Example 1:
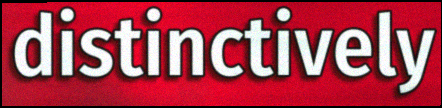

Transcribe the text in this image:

distinctively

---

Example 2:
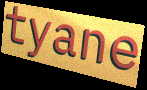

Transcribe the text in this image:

tyane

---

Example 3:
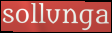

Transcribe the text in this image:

sollunga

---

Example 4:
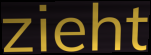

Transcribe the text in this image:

zieht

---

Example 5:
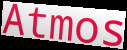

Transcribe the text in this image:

Atmos